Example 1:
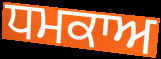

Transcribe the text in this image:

ਧਮਕਾਅ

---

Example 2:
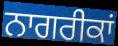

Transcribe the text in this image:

ਨਾਗਰੀਕਾਂ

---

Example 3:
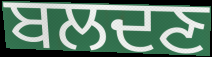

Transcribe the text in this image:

ਬਲਦਣ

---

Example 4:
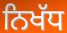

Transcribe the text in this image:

ਨਿਖੱਧ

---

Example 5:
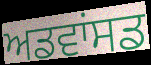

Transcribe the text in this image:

ਅਡਵਾਂਸਡ